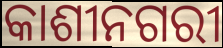
କାଶୀନଗରୀ